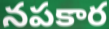
నపకార